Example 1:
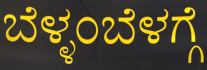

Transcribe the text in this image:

ಬೆಳ್ಳಂಬೆಳಗ್ಗೆ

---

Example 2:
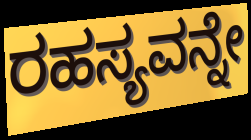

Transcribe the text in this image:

ರಹಸ್ಯವನ್ನೇ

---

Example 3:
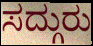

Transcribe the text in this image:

ಸದ್ಗುರು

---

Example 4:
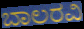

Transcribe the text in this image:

ಬಾಲರವಿ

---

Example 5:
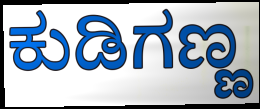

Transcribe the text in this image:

ಕುಡಿಗಣ್ಣ